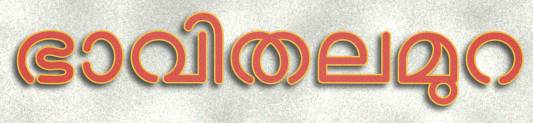
ഭാവിതലമുറ